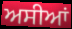
ਅਸੀਆਂ